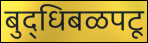
बुद्धिबळपटू